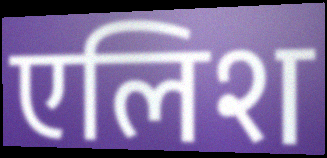
एलिश